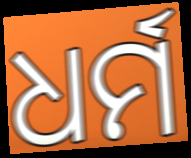
ଧର୍ମ